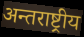
अन्तराष्ट्रीय